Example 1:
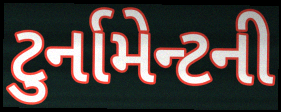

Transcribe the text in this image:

ટુર્નામેન્ટની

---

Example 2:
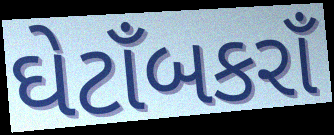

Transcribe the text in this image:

ઘેટાઁબકરાઁ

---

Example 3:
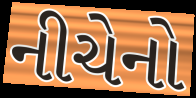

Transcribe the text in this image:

નીચેનો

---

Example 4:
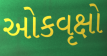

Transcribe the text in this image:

ઓકવૃક્ષો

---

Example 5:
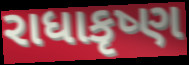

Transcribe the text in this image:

રાધાકૃષ્ણ